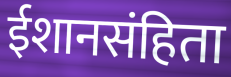
ईशानसंहिता